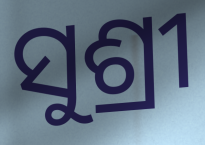
ସୁଶ୍ରୀ